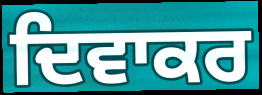
ਦਿਵਾਕਰ